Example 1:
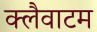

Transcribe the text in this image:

क्लैवाटम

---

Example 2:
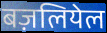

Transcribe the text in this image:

बज़लियेल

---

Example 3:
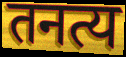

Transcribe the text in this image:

तनत्य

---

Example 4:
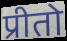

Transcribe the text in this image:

प्रीतो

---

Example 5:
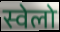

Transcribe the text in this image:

स्वेलो